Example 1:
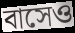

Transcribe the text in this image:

বাসেও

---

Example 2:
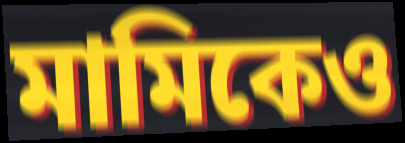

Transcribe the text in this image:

মামিকেও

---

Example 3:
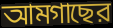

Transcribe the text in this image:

আমগাছের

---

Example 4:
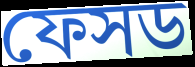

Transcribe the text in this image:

ফেসড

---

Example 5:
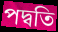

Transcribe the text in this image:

পদ্বতি